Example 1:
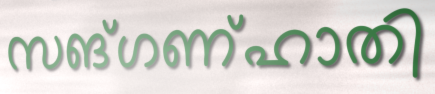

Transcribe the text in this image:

സങ്ഗണ്ഹാതി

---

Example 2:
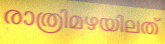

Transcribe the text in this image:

രാത്രിമഴയിലത്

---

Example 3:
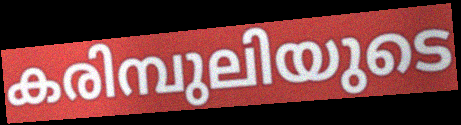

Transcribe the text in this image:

കരിമ്പുലിയുടെ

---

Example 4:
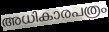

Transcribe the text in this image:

അധികാരപത്രം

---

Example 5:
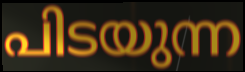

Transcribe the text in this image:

പിടയുന്ന